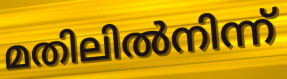
മതിലിൽനിന്ന്